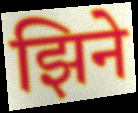
झिने